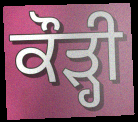
ਕੌੜ੍ਹੀ